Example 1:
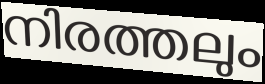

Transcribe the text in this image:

നിരത്തലും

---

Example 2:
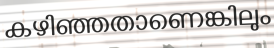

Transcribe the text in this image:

കഴിഞ്ഞതാണെങ്കിലും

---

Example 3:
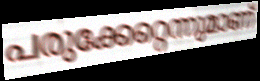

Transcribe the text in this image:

പരുക്കേറ്റെന്നുമാണ്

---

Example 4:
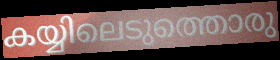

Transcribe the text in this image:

കയ്യിലെടുത്തൊരു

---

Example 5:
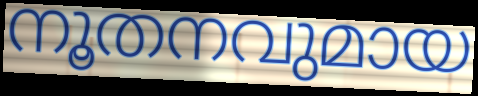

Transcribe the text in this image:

നൂതനവുമായ